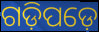
ଗଡ଼ିପଡ଼େ